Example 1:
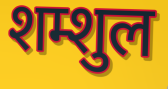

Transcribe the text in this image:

शम्शुल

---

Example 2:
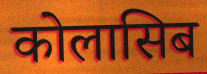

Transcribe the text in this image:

कोलासिब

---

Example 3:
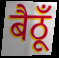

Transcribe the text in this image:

बैठूँ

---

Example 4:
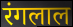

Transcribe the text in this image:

रंगलाल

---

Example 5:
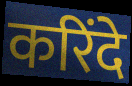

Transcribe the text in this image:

करिंदे